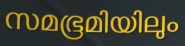
സമഭൂമിയിലും